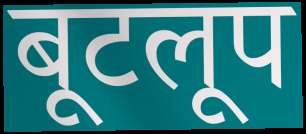
बूटलूप